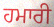
ਹਮਾਰੀ